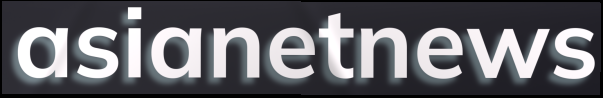
asianetnews